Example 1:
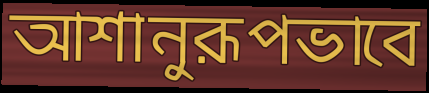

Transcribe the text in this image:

আশানুরূপভাবে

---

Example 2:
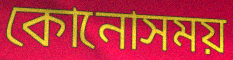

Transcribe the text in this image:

কোনোসময়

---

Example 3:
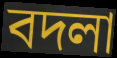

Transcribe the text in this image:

বদলা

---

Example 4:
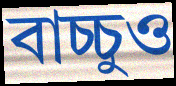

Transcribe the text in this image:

বাচ্চুও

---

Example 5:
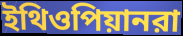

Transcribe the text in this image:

ইথিওপিয়ানরা